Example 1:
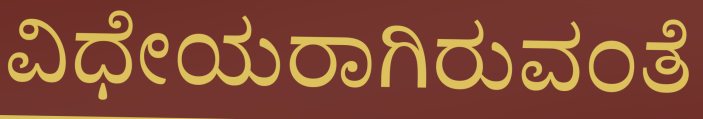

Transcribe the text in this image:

ವಿಧೇಯರಾಗಿರುವಂತೆ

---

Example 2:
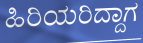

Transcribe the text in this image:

ಹಿರಿಯರಿದ್ದಾಗ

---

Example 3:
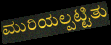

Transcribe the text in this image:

ಮುರಿಯಲ್ಪಟ್ಟಿತು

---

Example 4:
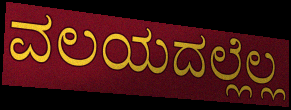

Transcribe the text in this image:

ವಲಯದಲ್ಲೆಲ್ಲ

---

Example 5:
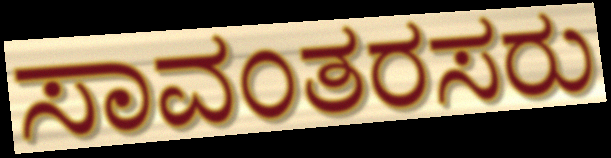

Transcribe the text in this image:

ಸಾವಂತರಸರು